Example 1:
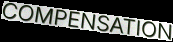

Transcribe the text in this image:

COMPENSATION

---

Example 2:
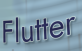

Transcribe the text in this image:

Flutter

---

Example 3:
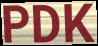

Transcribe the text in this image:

PDK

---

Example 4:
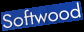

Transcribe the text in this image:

Softwood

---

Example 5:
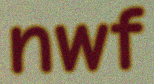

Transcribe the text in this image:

nwf